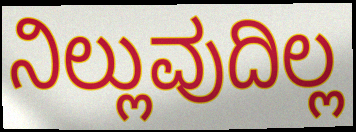
ನಿಲ್ಲುವುದಿಲ್ಲ